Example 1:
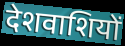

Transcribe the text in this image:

देशवाशियों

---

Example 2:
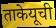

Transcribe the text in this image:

ताकेयूची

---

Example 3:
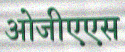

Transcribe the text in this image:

ओजीएएस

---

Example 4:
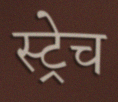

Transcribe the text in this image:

स्ट्रेच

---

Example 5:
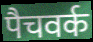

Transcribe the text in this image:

पैचवर्क